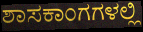
ಶಾಸಕಾಂಗಗಳಲ್ಲಿ